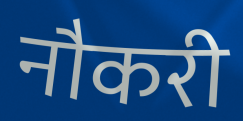
नौकरी